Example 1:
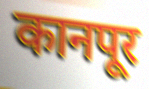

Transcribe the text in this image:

कानपूर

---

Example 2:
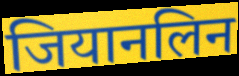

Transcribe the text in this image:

जियानलिन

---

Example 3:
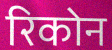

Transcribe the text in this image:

रिकोन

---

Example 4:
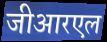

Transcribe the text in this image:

जीआरएल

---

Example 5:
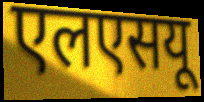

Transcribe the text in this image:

एलएसयू